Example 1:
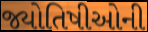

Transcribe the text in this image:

જ્યોતિષીઓની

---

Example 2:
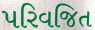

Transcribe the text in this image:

પરિવજિત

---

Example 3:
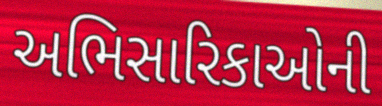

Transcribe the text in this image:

અભિસારિકાઓની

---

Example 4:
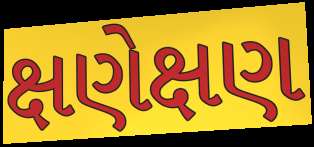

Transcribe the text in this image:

ક્ષણેક્ષણ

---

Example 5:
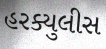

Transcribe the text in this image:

હરક્યુલીસ